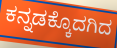
ಕನ್ನಡಕ್ಕೊದಗಿದ